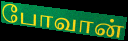
போவான்